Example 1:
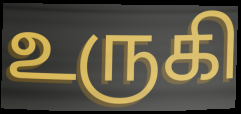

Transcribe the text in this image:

உருகி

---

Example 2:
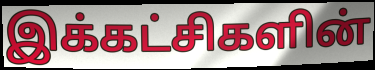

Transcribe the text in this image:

இக்கட்சிகளின்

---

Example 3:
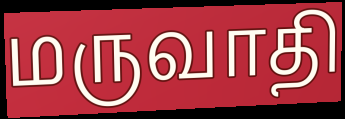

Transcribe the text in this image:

மருவாதி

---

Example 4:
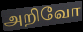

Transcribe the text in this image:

அறிவோ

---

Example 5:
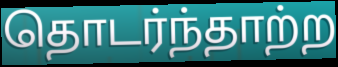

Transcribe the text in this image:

தொடர்ந்தாற்ற